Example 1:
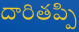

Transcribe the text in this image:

దారితప్పి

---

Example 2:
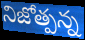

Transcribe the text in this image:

నిజోత్పన్న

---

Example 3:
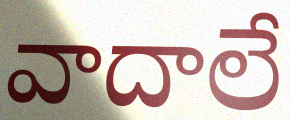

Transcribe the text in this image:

వాదాలే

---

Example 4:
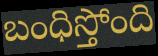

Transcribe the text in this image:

బంధిస్తోంది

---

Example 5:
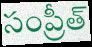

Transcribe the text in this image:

సంప్రీత్